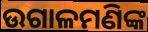
ଉଗାଳମଣିଙ୍କ